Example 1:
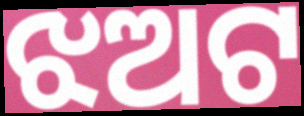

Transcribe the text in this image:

ଝଅଟ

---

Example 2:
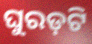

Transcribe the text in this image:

ଘୁରଡ଼ଟି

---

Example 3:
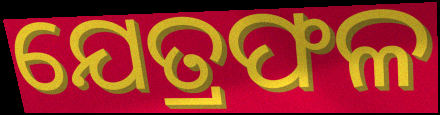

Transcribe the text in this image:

ଯେତ୍ରଫଳ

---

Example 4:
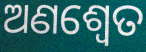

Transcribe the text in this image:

ଅଣଶ୍ୱେତ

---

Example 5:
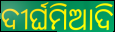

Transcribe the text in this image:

ଦୀର୍ଘମିଆଦି